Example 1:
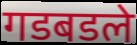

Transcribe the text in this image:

गडबडले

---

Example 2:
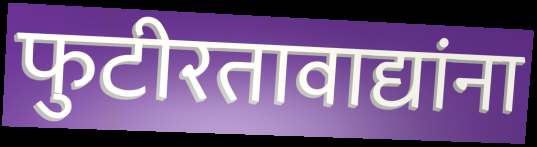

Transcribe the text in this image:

फुटीरतावाद्यांना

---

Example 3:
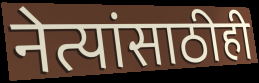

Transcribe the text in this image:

नेत्यांसाठीही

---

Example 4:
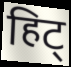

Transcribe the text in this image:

हिट्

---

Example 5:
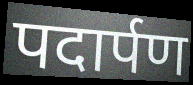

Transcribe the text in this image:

पदार्पण